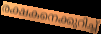
രക്ഷകനെക്കുറിച്ച്